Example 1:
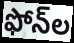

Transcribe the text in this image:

ఫోన్‌ల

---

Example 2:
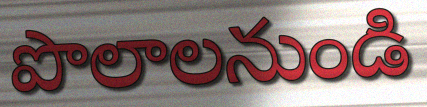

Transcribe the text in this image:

పొలాలనుండి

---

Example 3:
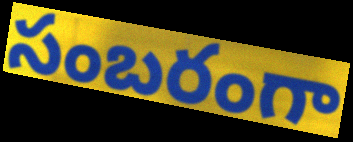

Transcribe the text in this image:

సంబరంగా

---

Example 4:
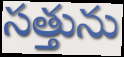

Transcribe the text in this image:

సత్తును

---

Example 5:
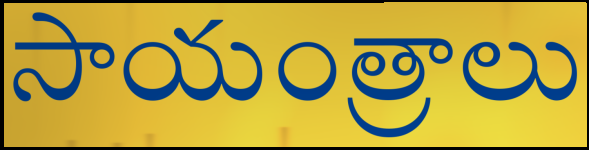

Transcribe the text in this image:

సాయంత్రాలు